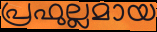
പ്രഫുല്ലമായ